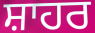
ਸ਼ਾਹਰ